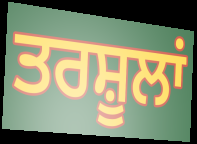
ਤਰਸ਼ੂਲਾਂ